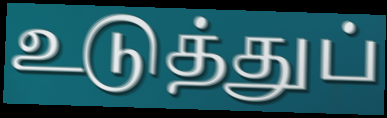
உடுத்துப்